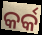
କର୍କ